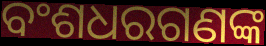
ବଂଶଧରଗଣଙ୍କ